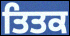
ਤਿਤਕ